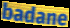
badane